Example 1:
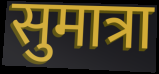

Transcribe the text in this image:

सुमात्रा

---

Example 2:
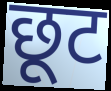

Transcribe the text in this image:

छूट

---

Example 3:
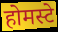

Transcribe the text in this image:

होमस्टे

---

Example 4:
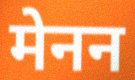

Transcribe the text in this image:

मेनन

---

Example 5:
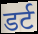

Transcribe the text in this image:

डर्ट